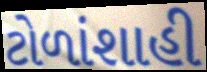
ટોળાંશાહી